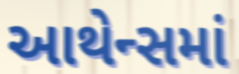
આથેન્સમાં